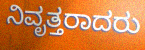
ನಿವೃತ್ತರಾದರು